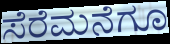
ಸೆರೆಮನೆಗೂ